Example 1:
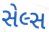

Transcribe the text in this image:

સેલ્સ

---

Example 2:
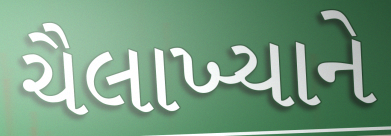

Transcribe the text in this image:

ચૈલાખ્યાને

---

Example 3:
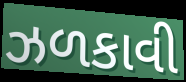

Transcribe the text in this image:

ઝળકાવી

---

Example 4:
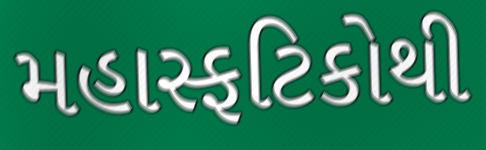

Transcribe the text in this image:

મહાસ્ફટિકોથી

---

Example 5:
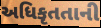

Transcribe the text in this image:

અધિકૃતતાની